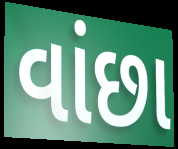
વાંછા